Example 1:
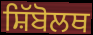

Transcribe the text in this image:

ਸ਼ਿੱਬੋਲਥ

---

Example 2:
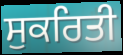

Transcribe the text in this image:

ਸੁਕਰਿਤੀ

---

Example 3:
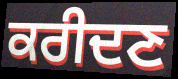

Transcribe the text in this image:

ਕਰੀਦਣ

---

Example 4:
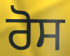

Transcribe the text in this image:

ਰੋਸ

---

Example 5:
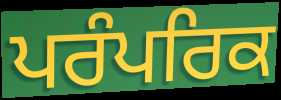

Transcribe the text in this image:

ਪਰੰਪਰਿਕ